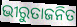
ଭୀରୁତାଜନିତ